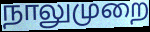
நாலுமுறை